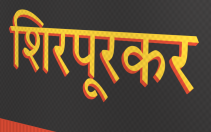
शिरपूरकर